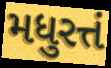
મધુરત્તં